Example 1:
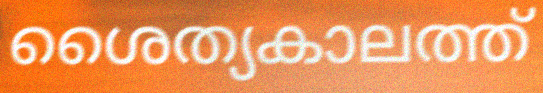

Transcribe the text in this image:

ശൈത്യകാലത്ത്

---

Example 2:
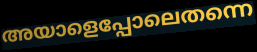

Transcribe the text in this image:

അയാളെപ്പോലെതന്നെ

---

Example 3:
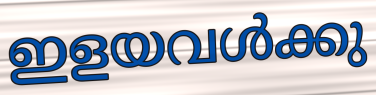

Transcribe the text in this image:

ഇളയവൾക്കു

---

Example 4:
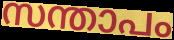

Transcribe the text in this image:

സന്താപം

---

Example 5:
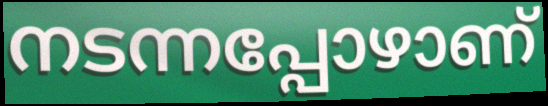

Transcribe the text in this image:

നടന്നപ്പോഴാണ്